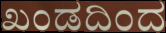
ಖಂಡದಿಂದ